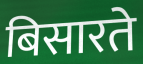
बिसारते